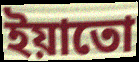
ইয়াতো